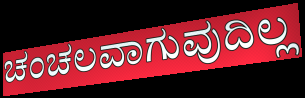
ಚಂಚಲವಾಗುವುದಿಲ್ಲ